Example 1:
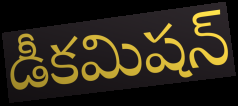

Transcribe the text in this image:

డీకమిషన్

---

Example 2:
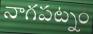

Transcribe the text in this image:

నాగపట్నం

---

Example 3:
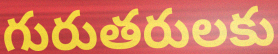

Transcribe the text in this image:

గురుతరులకు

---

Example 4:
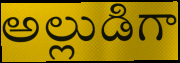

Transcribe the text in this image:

అల్లుడిగా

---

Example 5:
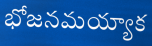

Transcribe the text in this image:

భోజనమయ్యాక